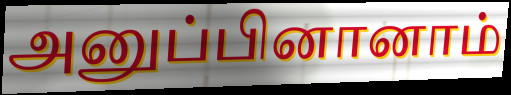
அனுப்பினானாம்